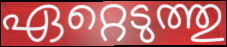
ഏറ്റെടുത്തു